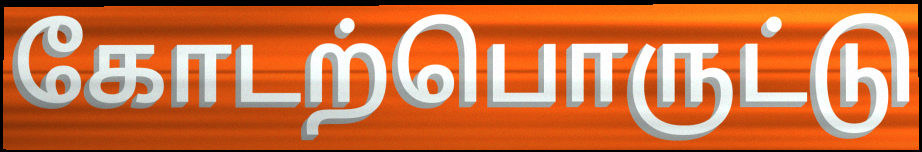
கோடற்பொருட்டு